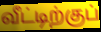
வீட்டிற்குப்